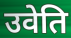
उवेति